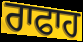
ਰਾਫਾਹ